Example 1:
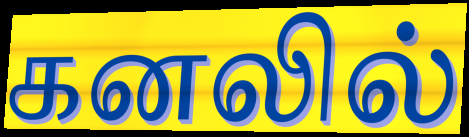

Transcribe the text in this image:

கனலில்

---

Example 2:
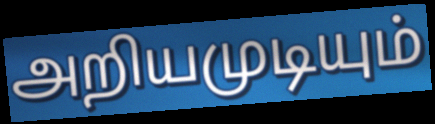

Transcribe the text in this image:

அறியமுடியும்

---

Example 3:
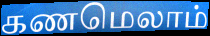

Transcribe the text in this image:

கணமெலாம்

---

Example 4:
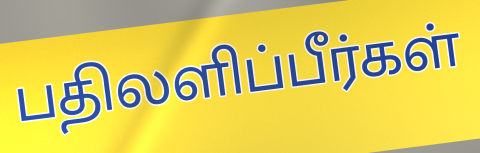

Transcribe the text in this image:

பதிலளிப்பீர்கள்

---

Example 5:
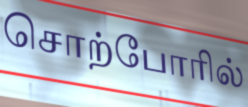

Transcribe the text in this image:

சொற்போரில்